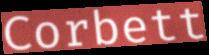
Corbett